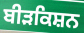
ਬੀੜਕਿਸ਼ਨ